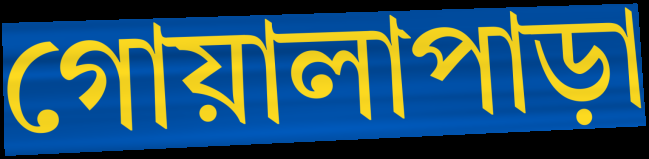
গোয়ালাপাড়া